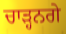
ਚਾੜ੍ਹਨਗੇ